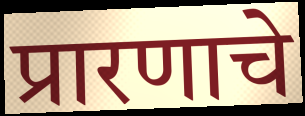
प्रारणाचे